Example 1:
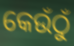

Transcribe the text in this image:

କେଉଁଠୁଁ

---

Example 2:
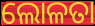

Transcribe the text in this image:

ଲୋଳତା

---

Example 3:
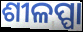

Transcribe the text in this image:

ଶୀଳପ୍ପା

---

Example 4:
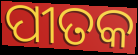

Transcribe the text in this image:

ପୀତକ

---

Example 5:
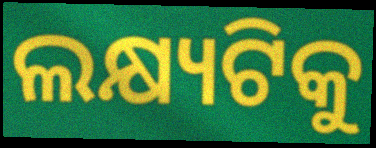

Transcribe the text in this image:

ଲକ୍ଷ୍ୟଟିକୁ